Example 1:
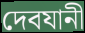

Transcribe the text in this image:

দেবযানী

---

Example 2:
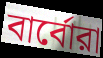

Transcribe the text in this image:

বার্বোরা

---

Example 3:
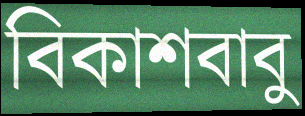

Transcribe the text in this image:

বিকাশবাবু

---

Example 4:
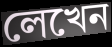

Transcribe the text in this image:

লেখেন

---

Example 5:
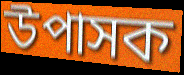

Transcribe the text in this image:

উপাসক